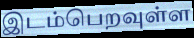
இடம்பெறவுள்ள